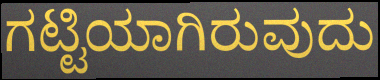
ಗಟ್ಟಿಯಾಗಿರುವುದು